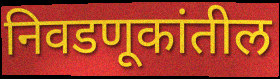
निवडणूकांतील